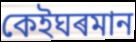
কেইঘৰমান